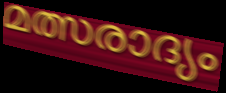
മത്സരാദ്യം